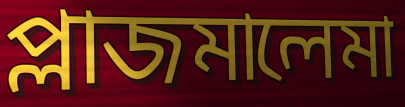
প্লাজমালেমা